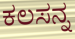
ಕಲಸನ್ನ